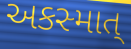
અકસ્માત્